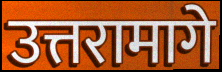
उत्तरामागे